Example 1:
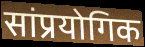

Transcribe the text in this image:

सांप्रयोगिक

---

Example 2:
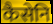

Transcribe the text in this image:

कैसेनि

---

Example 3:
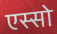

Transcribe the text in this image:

एस्सो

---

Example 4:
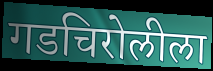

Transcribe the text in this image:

गडचिरोलीला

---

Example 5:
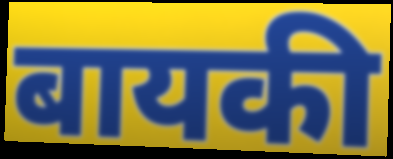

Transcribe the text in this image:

बायकी